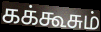
கக்கூசும்